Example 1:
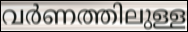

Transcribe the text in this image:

വർണത്തിലുള്ള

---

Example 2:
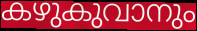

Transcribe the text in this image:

കഴുകുവാനും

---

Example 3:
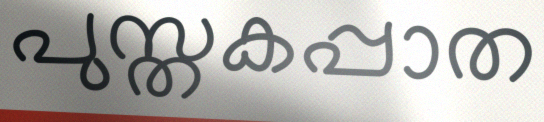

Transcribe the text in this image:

പുസ്തകപ്പാത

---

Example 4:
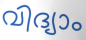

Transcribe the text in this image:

വിദ്യാം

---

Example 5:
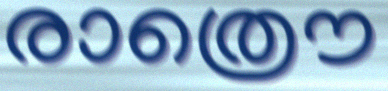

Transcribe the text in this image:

രാത്രൌ